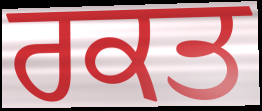
ਰਕਤ